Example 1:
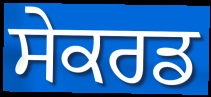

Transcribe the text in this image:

ਸੇਕਰਡ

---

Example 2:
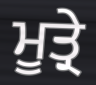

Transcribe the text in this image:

ਮੂਤ੍ਰੇ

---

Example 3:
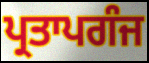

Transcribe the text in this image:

ਪ੍ਰਤਾਪਗੰਜ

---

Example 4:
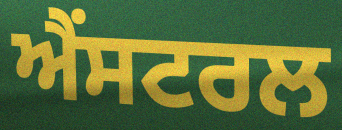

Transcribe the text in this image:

ਐਂਸਟਰਲ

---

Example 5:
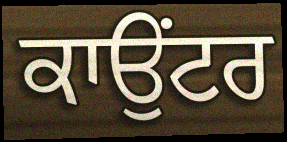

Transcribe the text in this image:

ਕਾਉਂਟਰ